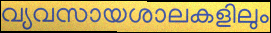
വ്യവസായശാലകളിലും